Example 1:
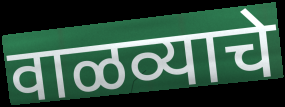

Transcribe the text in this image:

वाळव्याचे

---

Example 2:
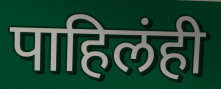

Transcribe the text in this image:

पाहिलंही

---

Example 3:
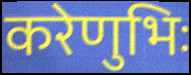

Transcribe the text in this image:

करेणुभिः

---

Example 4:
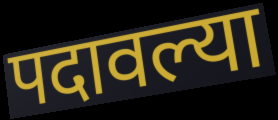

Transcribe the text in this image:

पदावल्या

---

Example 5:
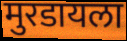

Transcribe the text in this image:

मुरडायला